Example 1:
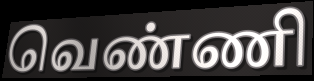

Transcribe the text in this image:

வெண்ணி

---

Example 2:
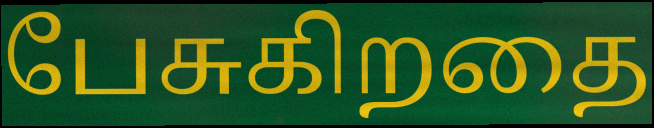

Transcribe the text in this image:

பேசுகிறதை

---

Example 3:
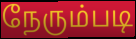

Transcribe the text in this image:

நேரும்படி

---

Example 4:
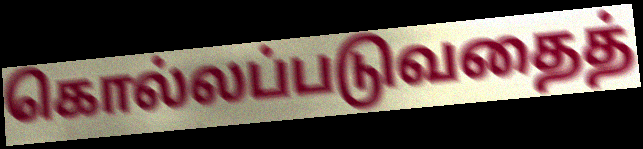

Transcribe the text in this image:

கொல்லப்படுவதைத்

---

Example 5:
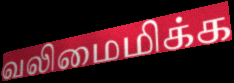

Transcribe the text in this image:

வலிமைமிக்க